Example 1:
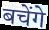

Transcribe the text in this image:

बचेंगे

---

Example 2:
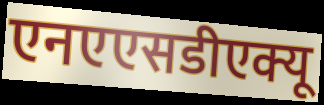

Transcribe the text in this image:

एनएएसडीएक्यू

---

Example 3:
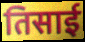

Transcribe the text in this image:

तिसाई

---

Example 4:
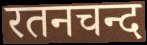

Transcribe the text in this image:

रतनचन्द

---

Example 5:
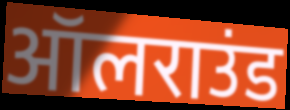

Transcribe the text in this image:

ऑलराउंड